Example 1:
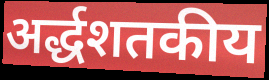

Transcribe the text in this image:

अर्द्धशतकीय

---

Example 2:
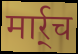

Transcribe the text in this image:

मार्र्च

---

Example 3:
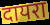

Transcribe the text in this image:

दायरा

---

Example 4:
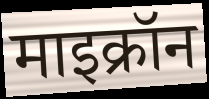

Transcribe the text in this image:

माइक्रॉन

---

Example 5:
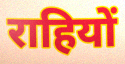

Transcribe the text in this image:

राहियों